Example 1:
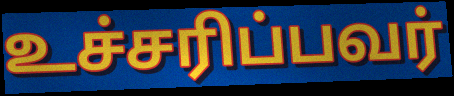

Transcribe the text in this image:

உச்சரிப்பவர்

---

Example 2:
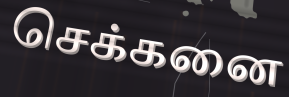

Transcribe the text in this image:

செக்கனை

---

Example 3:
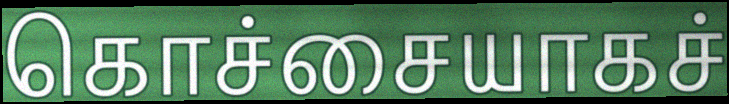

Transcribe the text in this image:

கொச்சையாகச்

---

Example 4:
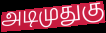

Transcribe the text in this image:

அடிமுதுகு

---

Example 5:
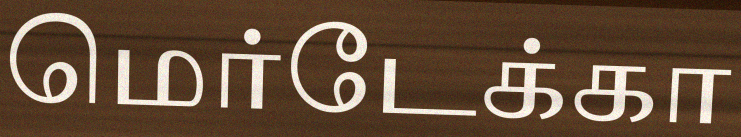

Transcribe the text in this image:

மெர்டேக்கா